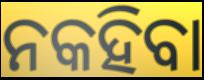
ନକହିବା